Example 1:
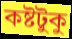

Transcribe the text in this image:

কষ্টটুকু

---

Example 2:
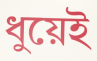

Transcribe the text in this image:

ধুয়েই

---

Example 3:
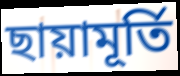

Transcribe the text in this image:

ছায়ামূর্তি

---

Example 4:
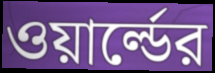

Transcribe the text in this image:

ওয়ার্ল্ডের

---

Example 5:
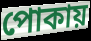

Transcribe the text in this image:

পোকায়